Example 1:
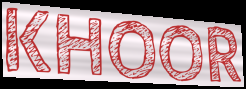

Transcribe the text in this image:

KHOOR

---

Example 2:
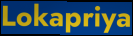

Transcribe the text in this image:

Lokapriya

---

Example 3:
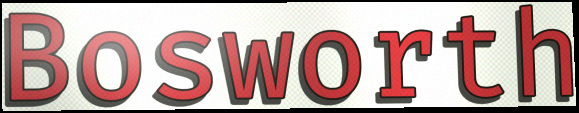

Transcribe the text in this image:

Bosworth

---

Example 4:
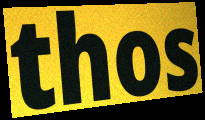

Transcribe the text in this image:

thos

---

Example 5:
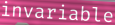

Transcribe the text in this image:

invariable